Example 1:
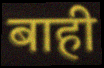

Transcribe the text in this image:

बाही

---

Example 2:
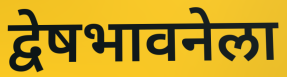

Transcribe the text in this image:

द्वेषभावनेला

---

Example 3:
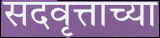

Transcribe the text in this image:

सदवृत्ताच्या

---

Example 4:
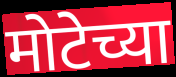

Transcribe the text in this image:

मोटेच्या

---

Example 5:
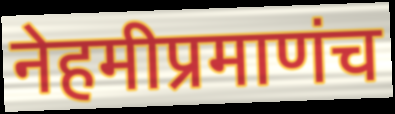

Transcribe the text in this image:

नेहमीप्रमाणंच